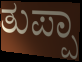
ತುಪ್ಪಾ